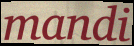
mandi